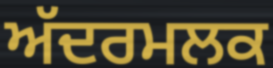
ਅੱਦਰਮਲਕ